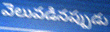
వెలువడినప్పుడు